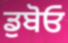
ਡੁਬੋਓ